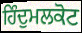
ਹਿੰਦੁਮਲਕੋਟ